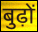
बुढ़ों